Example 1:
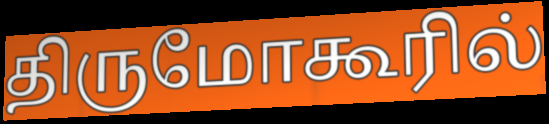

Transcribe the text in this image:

திருமோகூரில்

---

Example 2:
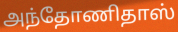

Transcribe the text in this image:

அந்தோணிதாஸ்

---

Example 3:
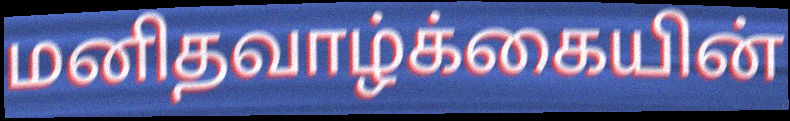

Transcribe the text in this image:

மனிதவாழ்க்கையின்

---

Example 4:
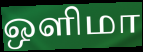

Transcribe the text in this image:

ஒளிமா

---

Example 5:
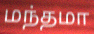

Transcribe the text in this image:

மந்தமா